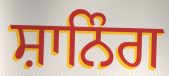
ਸ਼ਾਨਿੰਗ